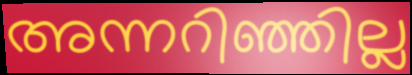
അന്നറിഞ്ഞില്ല